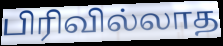
பிரிவில்லாத